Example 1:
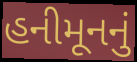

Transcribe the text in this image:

હનીમૂનનું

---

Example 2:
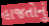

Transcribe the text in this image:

હાજતોનું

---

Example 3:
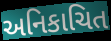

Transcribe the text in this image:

અનિકાચિત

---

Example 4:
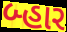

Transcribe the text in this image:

બ્હાર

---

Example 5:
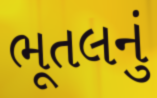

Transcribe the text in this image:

ભૂતલનું